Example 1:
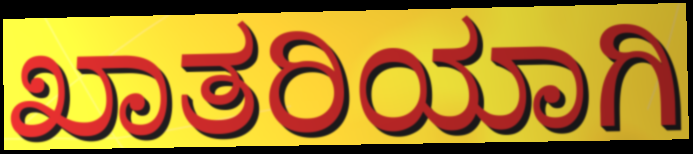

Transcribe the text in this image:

ಖಾತರಿಯಾಗಿ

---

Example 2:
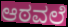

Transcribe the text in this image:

ಆಠವಲೆ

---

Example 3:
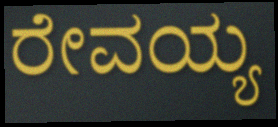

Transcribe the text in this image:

ರೇವಯ್ಯ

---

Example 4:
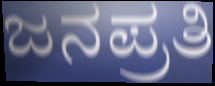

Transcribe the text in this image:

ಜನಪ್ರತಿ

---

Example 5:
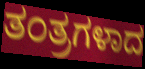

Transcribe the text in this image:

ತಂತ್ರಗಳಾದ